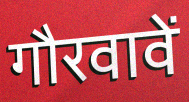
गौरवावें